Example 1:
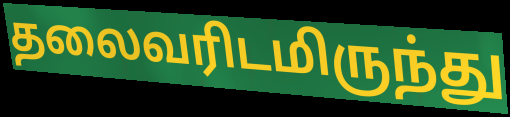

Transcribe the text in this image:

தலைவரிடமிருந்து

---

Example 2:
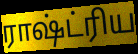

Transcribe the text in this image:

ராஷ்ட்ரிய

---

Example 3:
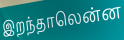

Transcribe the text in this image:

இறந்தாலென்ன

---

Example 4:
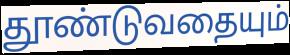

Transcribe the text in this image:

தூண்டுவதையும்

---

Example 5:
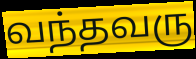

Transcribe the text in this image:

வந்தவரு